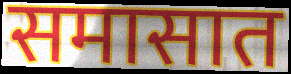
समासात